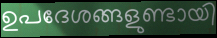
ഉപദേശങ്ങളുണ്ടായി